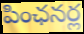
పింఛనర్ల